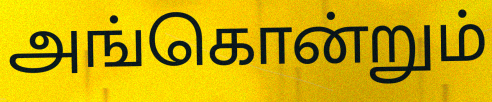
அங்கொன்றும்